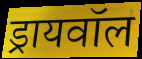
ड्रायवॉल